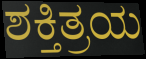
ಶಕ್ತಿತ್ರಯ